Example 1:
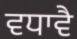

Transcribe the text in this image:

ਵਧਾਵੈ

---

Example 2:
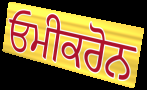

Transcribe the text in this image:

ਓਮੀਕਰੋਨ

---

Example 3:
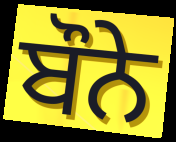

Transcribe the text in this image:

ਬੌਨੇ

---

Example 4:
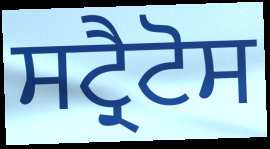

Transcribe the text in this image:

ਸਟ੍ਰੈਟੋਸ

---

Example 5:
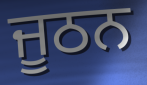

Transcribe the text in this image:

ਜੂਠਨ